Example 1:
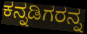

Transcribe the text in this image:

ಕನ್ನಡಿಗರನ್ನ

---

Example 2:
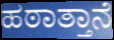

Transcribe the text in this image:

ಹಠಾತ್ತಾನೆ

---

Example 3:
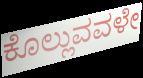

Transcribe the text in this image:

ಕೊಲ್ಲುವವಳೇ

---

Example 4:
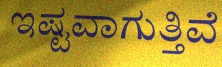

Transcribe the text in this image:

ಇಷ್ಟವಾಗುತ್ತಿವೆ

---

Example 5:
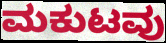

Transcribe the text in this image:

ಮಕುಟವು